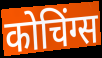
कोचिंग्स